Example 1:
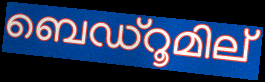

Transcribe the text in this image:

ബെഡ്റൂമില്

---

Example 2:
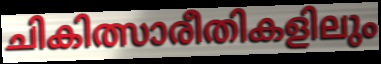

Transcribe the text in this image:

ചികിത്സാരീതികളിലും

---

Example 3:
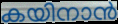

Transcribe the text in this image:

കയിനാൻ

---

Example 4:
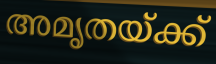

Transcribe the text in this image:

അമൃതയ്ക്ക്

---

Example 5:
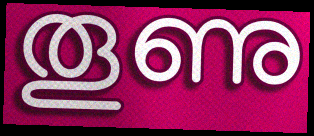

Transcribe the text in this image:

തൂണു